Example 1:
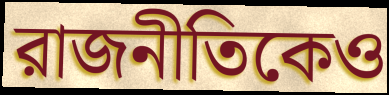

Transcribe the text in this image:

রাজনীতিকেও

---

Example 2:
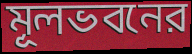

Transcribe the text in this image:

মূলভবনের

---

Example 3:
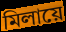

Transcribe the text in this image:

মিলায়ে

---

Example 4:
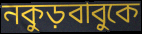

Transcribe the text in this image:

নকুড়বাবুকে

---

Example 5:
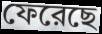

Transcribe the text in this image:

ফেরেছে